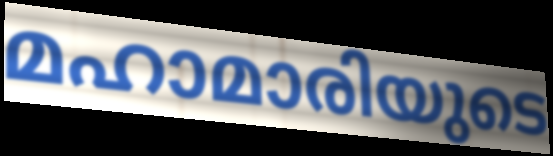
മഹാമാരിയുടെ